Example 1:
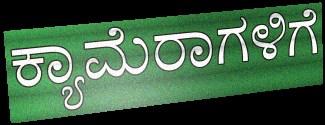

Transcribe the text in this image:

ಕ್ಯಾಮೆರಾಗಳಿಗೆ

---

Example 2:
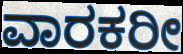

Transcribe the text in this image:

ವಾರಕರೀ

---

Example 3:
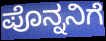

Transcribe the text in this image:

ಪೊನ್ನನಿಗೆ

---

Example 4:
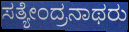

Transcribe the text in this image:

ಸತ್ಯೇಂದ್ರನಾಥರು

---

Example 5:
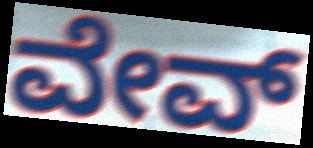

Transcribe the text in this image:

ವೇವ್